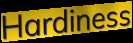
Hardiness